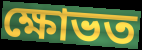
ক্ষোভত